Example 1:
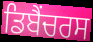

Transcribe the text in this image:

ਡਿਬੈਂਚਰਸ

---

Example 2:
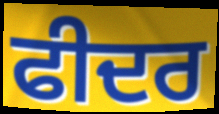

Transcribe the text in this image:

ਫੀਦਰ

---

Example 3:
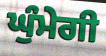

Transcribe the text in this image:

ਘੁੰਮੇਗੀ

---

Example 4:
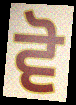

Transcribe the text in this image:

ਵੋ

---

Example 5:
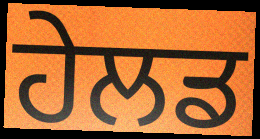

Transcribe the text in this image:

ਹੇਲਡ